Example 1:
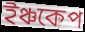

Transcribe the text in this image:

ইঞ্চকেপ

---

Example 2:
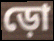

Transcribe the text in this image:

ড়ো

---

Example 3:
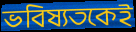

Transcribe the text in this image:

ভবিষ্যতকেই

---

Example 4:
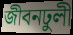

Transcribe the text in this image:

জীবনঢুলী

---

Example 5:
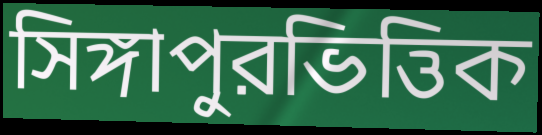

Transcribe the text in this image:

সিঙ্গাপুরভিত্তিক